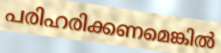
പരിഹരിക്കണമെങ്കിൽ